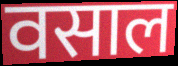
वसाल